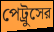
পেট্রুসের